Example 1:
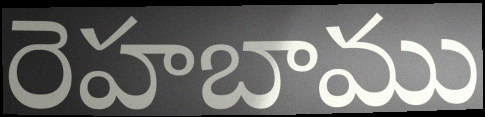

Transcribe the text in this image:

రెహబాము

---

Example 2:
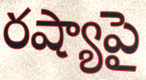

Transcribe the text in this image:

రష్యాపై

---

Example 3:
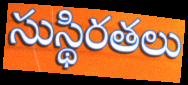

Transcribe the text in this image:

సుస్థిరతలు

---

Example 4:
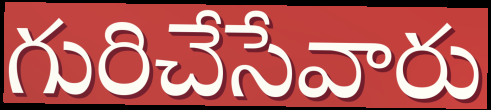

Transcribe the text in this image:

గురిచేసేవారు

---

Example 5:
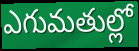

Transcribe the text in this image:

ఎగుమతుల్లో